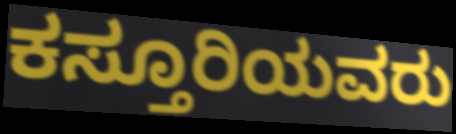
ಕಸ್ತೂರಿಯವರು